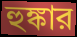
হুঙ্কার